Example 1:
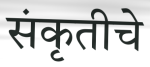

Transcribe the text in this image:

संकृतीचे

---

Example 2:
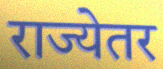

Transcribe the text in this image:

राज्येतर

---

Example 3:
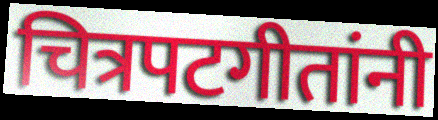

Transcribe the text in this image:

चित्रपटगीतांनी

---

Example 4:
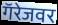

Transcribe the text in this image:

गॅरेजवर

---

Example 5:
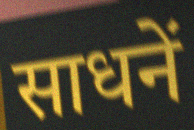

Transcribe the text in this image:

साधनें